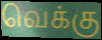
வெக்கு